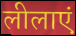
लीलाएं